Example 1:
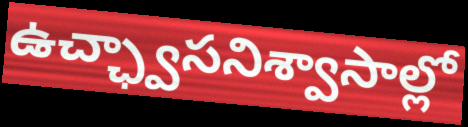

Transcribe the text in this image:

ఉచ్ఛ్వాసనిశ్వాసాల్లో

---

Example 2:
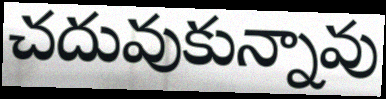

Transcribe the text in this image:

చదువుకున్నావు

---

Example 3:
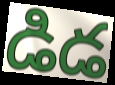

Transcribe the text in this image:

డిడ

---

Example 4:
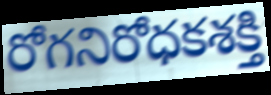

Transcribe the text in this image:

రోగనిరోధకశక్తి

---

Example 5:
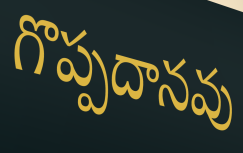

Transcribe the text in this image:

గొప్పదానవు